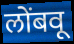
लोंबवू